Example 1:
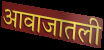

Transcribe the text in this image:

आवाजातली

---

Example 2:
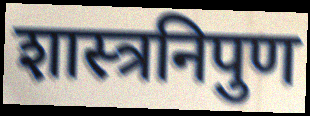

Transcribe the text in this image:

शास्त्रनिपुण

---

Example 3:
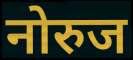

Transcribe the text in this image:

नोरुज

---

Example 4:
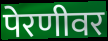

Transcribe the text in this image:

पेरणीवर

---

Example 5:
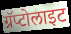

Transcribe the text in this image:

ग्रॅप्टोलाइट